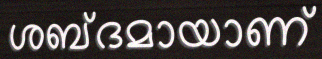
ശബ്ദമായാണ്